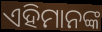
ଏହିମାନଙ୍କ